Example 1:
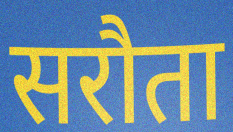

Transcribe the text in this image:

सरौता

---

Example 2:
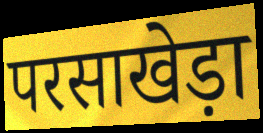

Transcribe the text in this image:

परसाखेड़ा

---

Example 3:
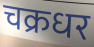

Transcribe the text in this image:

चक्रधर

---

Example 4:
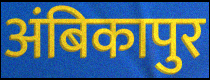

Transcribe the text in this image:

अंबिकापुर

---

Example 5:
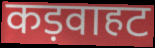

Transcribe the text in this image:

कड़वाहट